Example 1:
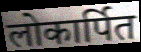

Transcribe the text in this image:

लोकार्पित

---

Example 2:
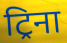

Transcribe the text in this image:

ट्रिना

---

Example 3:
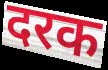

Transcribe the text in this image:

दरक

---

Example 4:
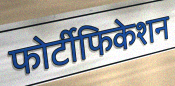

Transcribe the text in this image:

फोर्टीफिकेशन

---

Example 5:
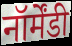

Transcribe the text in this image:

नॉर्मेंडी